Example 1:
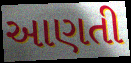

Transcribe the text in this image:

આણતી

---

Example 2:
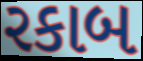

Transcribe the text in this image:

રકાબ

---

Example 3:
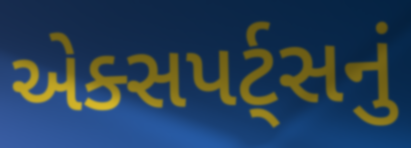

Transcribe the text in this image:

એક્સપર્ટ્સનું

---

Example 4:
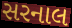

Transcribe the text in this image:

સરનાલ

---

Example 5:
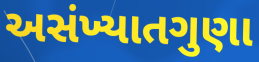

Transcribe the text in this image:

અસંખ્યાતગુણા